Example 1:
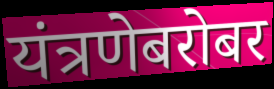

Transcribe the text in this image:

यंत्रणेबरोबर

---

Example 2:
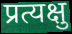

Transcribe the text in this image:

प्रत्यक्षु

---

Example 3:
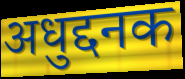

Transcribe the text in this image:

अधुद्दनक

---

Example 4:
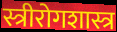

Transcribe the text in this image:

स्त्रीरोगशास्त्र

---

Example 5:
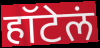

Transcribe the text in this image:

हॉटेलं